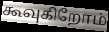
கூவுகிறோம்